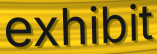
exhibit